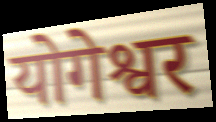
योगेश्वर